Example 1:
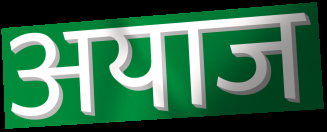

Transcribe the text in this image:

अयाज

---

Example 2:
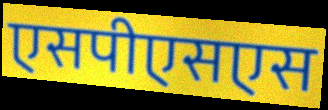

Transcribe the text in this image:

एसपीएसएस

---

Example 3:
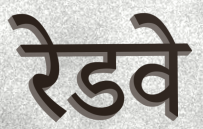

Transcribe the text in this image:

रेडवे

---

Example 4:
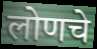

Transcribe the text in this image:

लोणचे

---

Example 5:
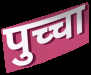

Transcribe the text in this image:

पुच्चा